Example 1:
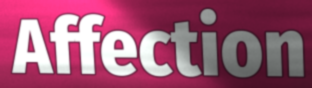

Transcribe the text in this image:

Affection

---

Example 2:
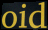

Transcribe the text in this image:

oid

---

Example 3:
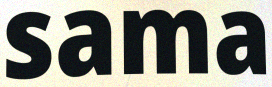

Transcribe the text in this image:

sama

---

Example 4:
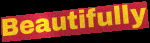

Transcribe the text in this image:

Beautifully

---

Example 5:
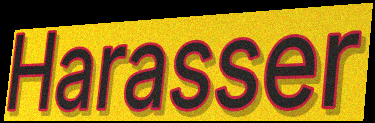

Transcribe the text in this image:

Harasser